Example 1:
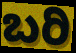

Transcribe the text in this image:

ಬರಿ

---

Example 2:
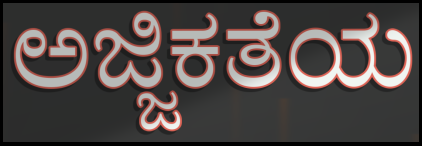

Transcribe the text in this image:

ಅಜ್ಜಿಕತೆಯ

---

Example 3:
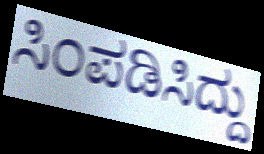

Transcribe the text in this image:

ಸಿಂಪಡಿಸಿದ್ದು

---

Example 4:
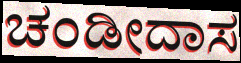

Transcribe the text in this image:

ಚಂಡೀದಾಸ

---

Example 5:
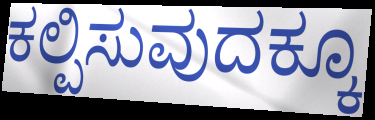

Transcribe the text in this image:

ಕಲ್ಪಿಸುವುದಕ್ಕೂ